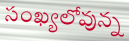
సంఖ్యలోవున్న